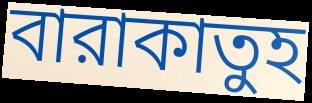
বারাকাতুহ